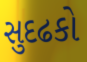
સુદઢકો